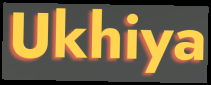
Ukhiya